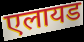
एलायड